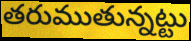
తరుముతున్నట్టు